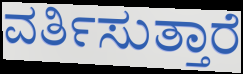
ವರ್ತಿಸುತ್ತಾರೆ